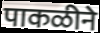
पाकळीने